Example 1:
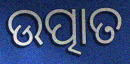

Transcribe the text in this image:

ଉତ୍ପାତ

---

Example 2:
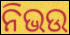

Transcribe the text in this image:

ନିଭଉ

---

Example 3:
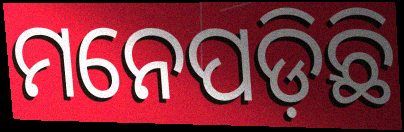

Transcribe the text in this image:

ମନେପଡ଼ିଛି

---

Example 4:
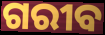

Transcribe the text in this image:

ଗରୀବ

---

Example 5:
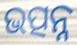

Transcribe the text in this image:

ଭତ୍ପନ୍ନ